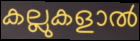
കല്ലുകളാൽ